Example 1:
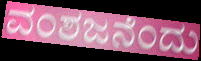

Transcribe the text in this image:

ವಂಶಜನೆಂದು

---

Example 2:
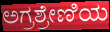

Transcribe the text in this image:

ಅಗ್ರಶ್ರೇಣಿಯ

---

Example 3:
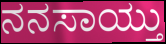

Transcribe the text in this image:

ನನಸಾಯ್ತು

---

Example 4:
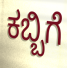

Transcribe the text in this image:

ಕಬ್ಬಿಗೆ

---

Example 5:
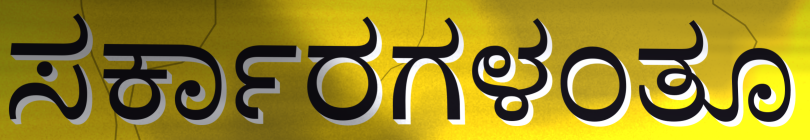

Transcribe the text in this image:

ಸರ್ಕಾರಗಳಂತೂ